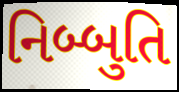
નિબ્બુતિ